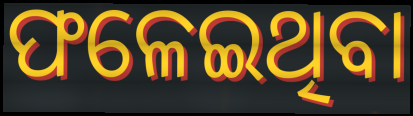
ଫଳେଇଥିବା